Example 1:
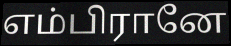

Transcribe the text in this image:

எம்பிரானே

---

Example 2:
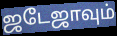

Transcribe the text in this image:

ஜடேஜாவும்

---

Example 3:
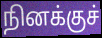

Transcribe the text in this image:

நினக்குச்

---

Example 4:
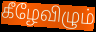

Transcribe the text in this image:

கீழேவிழும்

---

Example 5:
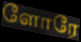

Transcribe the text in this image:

ளோரே